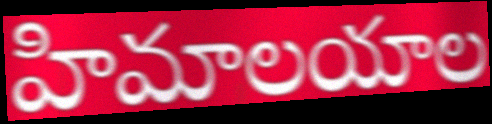
హిమాలయాల